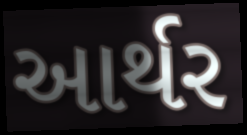
આર્થર